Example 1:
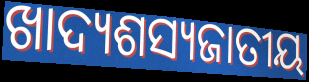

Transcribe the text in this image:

ଖାଦ୍ୟଶସ୍ୟଜାତୀୟ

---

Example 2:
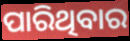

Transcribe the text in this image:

ପାରିଥିବାର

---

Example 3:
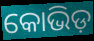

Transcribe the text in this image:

କୋଭିଡ଼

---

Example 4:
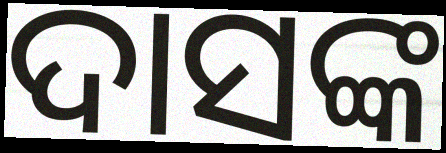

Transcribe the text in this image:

ଦାସଙ୍କ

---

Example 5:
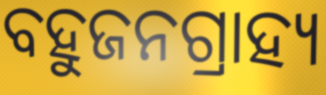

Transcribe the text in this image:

ବହୁଜନଗ୍ରାହ୍ୟ